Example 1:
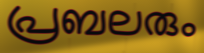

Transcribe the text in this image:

പ്രബലരും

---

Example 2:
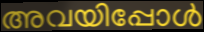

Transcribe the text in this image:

അവയിപ്പോൾ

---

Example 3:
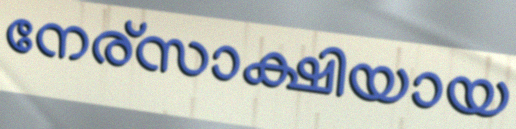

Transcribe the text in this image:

നേര്സാക്ഷിയായ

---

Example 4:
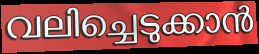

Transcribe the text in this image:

വലിച്ചെടുക്കാൻ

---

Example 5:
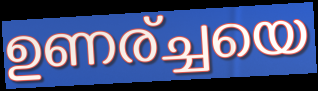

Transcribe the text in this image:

ഉണര്ച്ചയെ